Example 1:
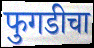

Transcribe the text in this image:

फुगडीचा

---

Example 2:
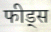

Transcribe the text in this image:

फीड्स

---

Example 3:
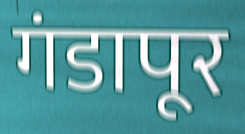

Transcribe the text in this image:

गंडापूर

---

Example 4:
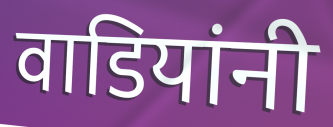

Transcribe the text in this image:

वाडियांनी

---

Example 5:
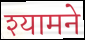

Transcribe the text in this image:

श्यामने